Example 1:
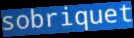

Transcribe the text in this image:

sobriquet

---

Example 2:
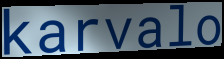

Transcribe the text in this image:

karvalo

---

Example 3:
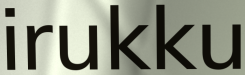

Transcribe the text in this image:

irukku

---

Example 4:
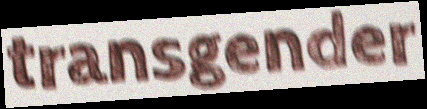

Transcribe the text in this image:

transgender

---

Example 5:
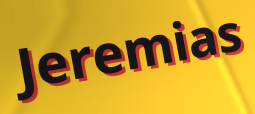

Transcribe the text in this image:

Jeremias